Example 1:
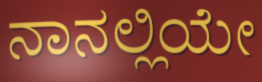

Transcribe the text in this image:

ನಾನಲ್ಲಿಯೇ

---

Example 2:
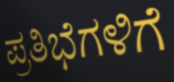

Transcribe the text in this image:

ಪ್ರತಿಭೆಗಳಿಗೆ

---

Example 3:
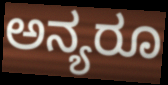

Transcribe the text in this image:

ಅನ್ಯರೂ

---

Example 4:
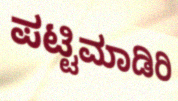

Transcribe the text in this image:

ಪಟ್ಟಿಮಾಡಿರಿ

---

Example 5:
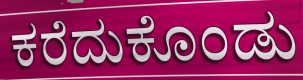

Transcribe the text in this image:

ಕರೆದುಕೊಂಡು